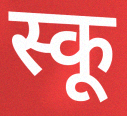
स्कू